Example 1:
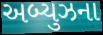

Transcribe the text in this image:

અબ્યુઝના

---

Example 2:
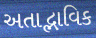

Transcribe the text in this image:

અતાદ્ભાવિક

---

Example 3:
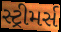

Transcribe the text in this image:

સ્ટ્રીમર્સ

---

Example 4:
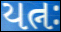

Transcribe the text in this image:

યત્નઃ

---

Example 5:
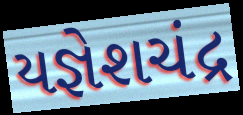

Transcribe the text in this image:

યજ્ઞેશચંદ્ર